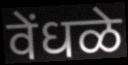
वेंधळे